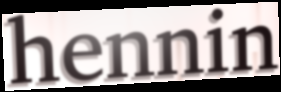
hennin